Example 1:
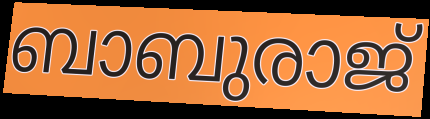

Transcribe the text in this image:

ബാബുരാജ്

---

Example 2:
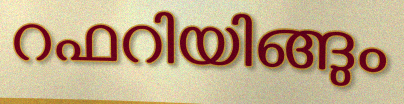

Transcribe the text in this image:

റഫറിയിങ്ങും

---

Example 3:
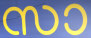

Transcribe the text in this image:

സാ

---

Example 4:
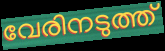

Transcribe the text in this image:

വേരിനടുത്ത്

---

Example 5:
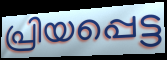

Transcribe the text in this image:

പ്രിയപ്പെട്ട